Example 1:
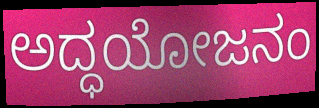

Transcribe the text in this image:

ಅದ್ಧಯೋಜನಂ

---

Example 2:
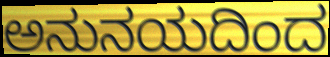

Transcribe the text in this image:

ಅನುನಯದಿಂದ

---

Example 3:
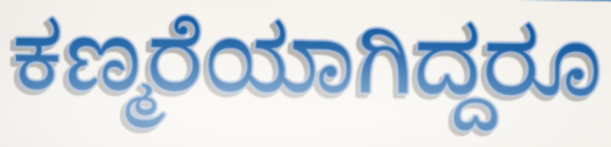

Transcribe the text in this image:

ಕಣ್ಮರೆಯಾಗಿದ್ದರೂ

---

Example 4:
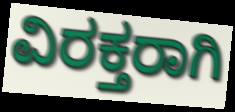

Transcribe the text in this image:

ವಿರಕ್ತರಾಗಿ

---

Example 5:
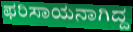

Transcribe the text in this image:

ಫರಿಸಾಯನಾಗಿದ್ದ